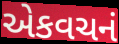
એકવચનં